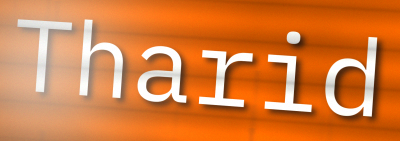
Tharid